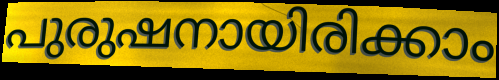
പുരുഷനായിരിക്കാം